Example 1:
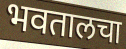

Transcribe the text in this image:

भवतालचा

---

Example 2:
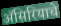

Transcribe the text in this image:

ॲसिरियाचे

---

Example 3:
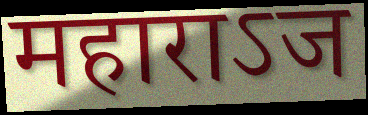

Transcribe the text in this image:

महाराऽज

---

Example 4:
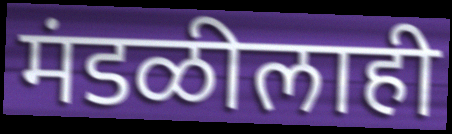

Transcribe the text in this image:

मंडळीलाही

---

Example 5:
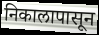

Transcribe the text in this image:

निकालापासून